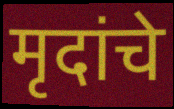
मृदांचे